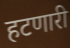
हटणारी